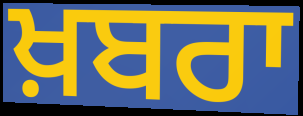
ਖ਼ਬਰਾ